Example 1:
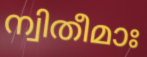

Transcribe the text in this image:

ന്വിതീമാഃ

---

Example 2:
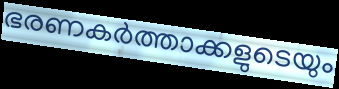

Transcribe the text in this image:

ഭരണകർത്താക്കളുടെയും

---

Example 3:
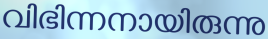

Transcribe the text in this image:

വിഭിന്നനായിരുന്നു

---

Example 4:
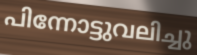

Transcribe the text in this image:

പിന്നോട്ടുവലിച്ചു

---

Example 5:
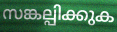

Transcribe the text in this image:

സങ്കല്പിക്കുക